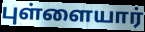
புள்ளையார்